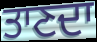
ਤਾਣਦਾ